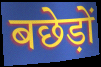
बछेड़ों